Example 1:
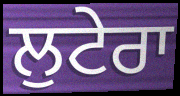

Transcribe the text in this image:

ਲੁਟੇਰਾ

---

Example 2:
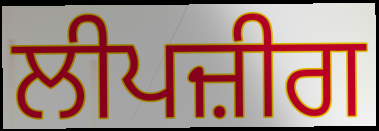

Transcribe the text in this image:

ਲੀਪਜ਼ੀਗ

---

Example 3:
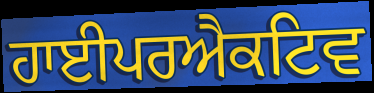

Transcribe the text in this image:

ਹਾਈਪਰਐਕਟਿਵ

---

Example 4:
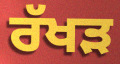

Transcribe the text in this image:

ਰੱਖੜ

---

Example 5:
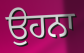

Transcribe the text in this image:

ਉਹਨਾ